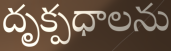
దృక్పధాలను